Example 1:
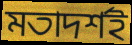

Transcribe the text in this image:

মতাদৰ্শই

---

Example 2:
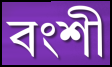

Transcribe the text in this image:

বংশী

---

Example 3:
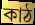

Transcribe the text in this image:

কাঠ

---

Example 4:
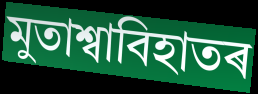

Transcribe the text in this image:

মুতাশ্বাবিহাতৰ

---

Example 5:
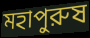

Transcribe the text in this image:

মহাপুৰুষ